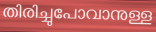
തിരിച്ചുപോവാനുള്ള